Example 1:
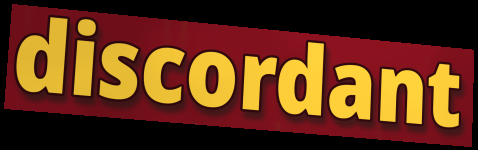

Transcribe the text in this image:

discordant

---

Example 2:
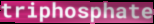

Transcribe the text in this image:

triphosphate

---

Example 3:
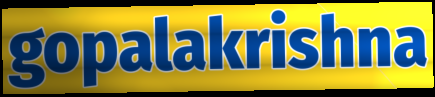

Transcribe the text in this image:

gopalakrishna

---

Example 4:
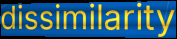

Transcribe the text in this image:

dissimilarity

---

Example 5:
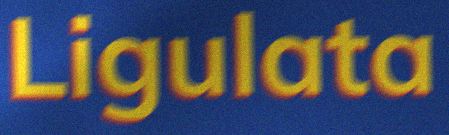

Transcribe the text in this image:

Ligulata